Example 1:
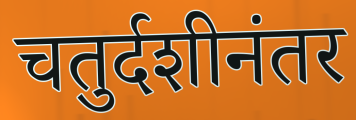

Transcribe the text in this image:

चतुर्दशीनंतर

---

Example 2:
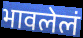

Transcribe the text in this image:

भावलेलं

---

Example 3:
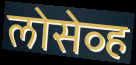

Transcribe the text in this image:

लोसेव्ह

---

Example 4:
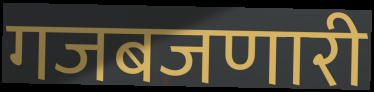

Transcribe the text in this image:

गजबजणारी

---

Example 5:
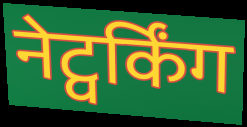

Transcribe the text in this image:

नेट्वर्किंग